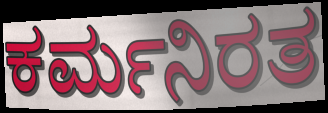
ಕರ್ಮನಿರತ